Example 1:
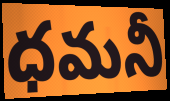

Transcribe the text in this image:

ధమనీ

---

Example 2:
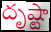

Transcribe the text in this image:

దృష్టా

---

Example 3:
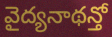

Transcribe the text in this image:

వైద్యనాథన్తో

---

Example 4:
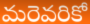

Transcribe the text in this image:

మరెవరికో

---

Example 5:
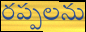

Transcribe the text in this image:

రప్పలను